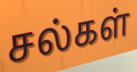
சல்கள்